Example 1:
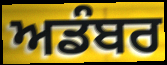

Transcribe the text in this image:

ਅਡੰਬਰ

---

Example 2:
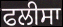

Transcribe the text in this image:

ਫਲੀਸਾ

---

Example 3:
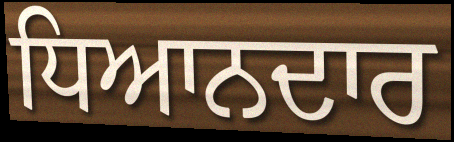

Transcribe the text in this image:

ਧਿਆਨਦਾਰ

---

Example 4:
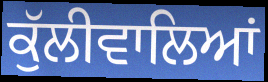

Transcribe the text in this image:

ਕੁੱਲੀਵਾਲਿਆਂ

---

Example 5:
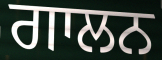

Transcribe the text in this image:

ਗਾਲਨ